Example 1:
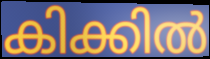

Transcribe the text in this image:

കിക്കിൽ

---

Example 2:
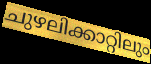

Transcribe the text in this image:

ചുഴലിക്കാറ്റിലും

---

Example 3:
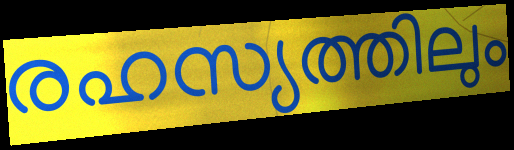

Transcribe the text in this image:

രഹസ്യത്തിലും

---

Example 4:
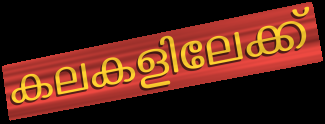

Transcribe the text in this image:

കലകളിലേക്ക്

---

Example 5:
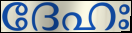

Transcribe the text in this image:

ദേഹഃ